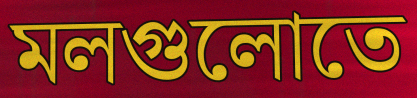
মলগুলোতে